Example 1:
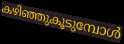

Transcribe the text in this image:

കഴിഞ്ഞുകൂടുമ്പോൾ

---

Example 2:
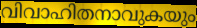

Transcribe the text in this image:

വിവാഹിതനാവുകയും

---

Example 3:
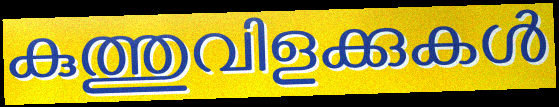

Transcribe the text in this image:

കുത്തുവിളക്കുകൾ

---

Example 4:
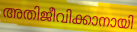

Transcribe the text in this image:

അതിജീവിക്കാനായി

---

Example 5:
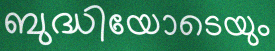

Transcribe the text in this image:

ബുദ്ധിയോടെയും